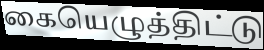
கையெழுத்திட்டு